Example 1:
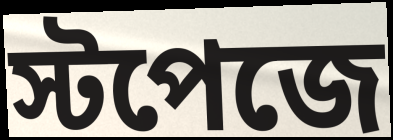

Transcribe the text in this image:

স্টপেজে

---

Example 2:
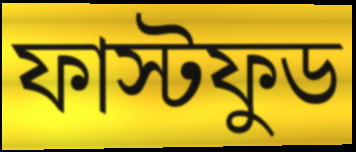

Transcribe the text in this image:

ফাস্টফুড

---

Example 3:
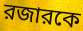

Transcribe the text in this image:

রজারকে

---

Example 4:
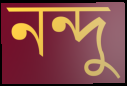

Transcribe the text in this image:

নন্দু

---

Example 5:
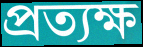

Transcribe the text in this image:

প্রত্যক্ষ